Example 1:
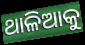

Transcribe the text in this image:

ଥାଳିଆକୁ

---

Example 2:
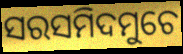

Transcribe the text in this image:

ସରସମିଦମୁଚେ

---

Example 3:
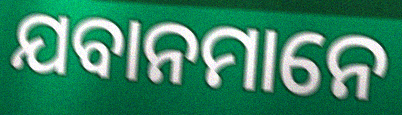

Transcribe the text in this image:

ଯବାନମାନେ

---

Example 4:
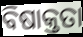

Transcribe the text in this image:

ବିଷାକ୍ତତା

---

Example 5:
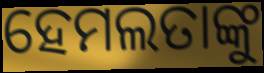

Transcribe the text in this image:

ହେମଲତାଙ୍କୁ